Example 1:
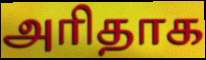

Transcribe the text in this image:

அரிதாக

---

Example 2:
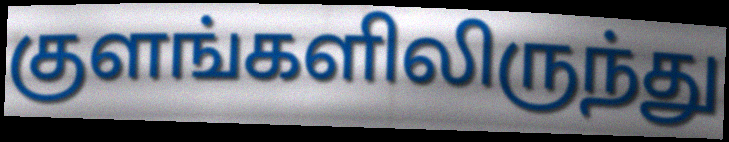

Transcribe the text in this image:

குளங்களிலிருந்து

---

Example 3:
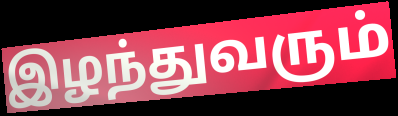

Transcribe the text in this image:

இழந்துவரும்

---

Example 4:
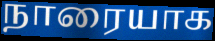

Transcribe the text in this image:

நாரையாக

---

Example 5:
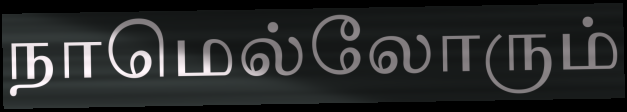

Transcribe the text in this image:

நாமெல்லோரும்